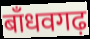
बाँधवगढ़